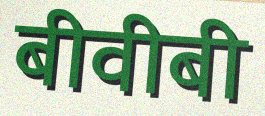
बीवीबी